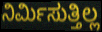
ನಿರ್ಮಿಸುತ್ತಿಲ್ಲ